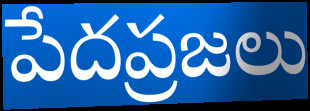
పేదప్రజలు